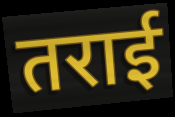
तराई